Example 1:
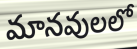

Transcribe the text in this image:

మానవులలో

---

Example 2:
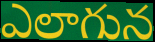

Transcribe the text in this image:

ఎలాగున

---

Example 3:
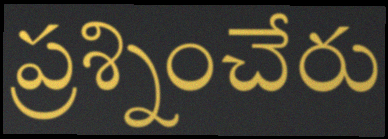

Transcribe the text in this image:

ప్రశ్నించేరు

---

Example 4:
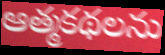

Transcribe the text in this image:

ఆత్మకథలను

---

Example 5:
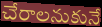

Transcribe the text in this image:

చేరాలనుకునే